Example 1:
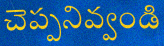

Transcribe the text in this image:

చెప్పనివ్వండి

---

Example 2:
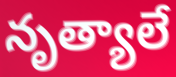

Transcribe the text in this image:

నృత్యాలే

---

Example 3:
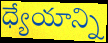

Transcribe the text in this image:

ధ్యేయాన్ని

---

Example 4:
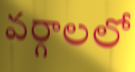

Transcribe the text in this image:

వర్గాలలో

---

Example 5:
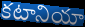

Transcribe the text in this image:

కటానియా